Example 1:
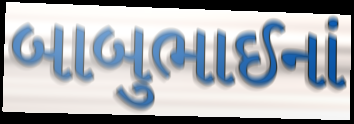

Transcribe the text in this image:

બાબુભાઈનાં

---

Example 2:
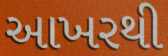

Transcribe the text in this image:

આખરથી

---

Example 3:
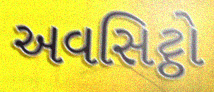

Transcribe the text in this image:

અવસિટ્ઠો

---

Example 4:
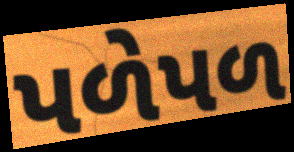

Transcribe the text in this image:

પળેપળ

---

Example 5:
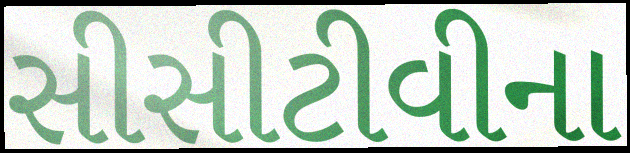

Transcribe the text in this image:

સીસીટીવીના